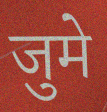
जुमे